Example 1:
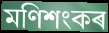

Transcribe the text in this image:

মণিশংকৰ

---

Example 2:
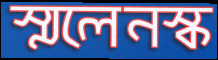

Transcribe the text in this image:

স্মলেনস্ক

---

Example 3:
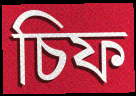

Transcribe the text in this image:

চিফ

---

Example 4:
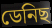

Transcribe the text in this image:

ডেনিছ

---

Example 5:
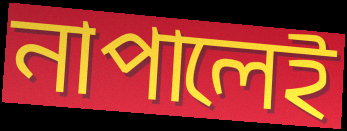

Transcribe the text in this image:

নাপালেই